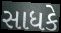
સાધકે